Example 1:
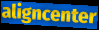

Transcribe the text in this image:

aligncenter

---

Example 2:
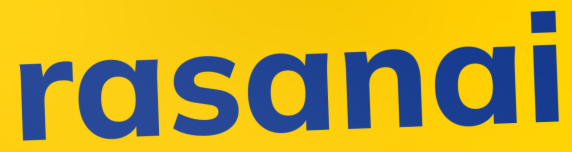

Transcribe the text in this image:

rasanai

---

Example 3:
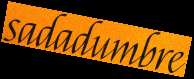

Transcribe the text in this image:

sadadumbre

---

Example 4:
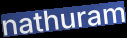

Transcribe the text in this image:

nathuram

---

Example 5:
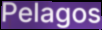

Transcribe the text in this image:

Pelagos